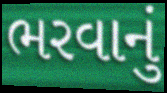
ભરવાનું